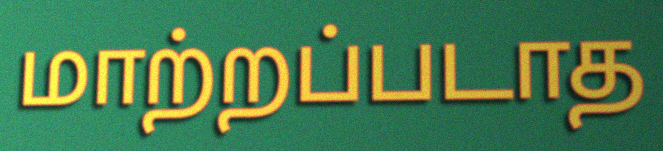
மாற்றப்படாத